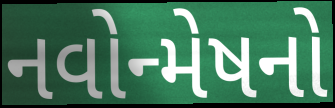
નવોન્મેષનો